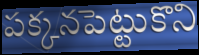
పక్కనపెట్టుకొని